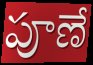
పూణే